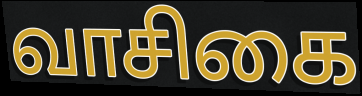
வாசிகை